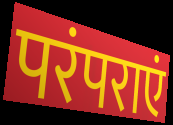
परंपराएं